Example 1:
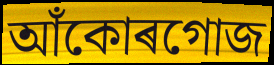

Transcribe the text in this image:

আঁকোৰগোজ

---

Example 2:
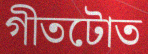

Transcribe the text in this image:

গীতটোত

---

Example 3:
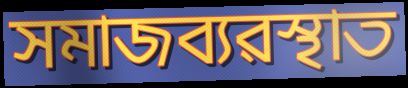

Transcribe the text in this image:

সমাজব্যৱস্থাত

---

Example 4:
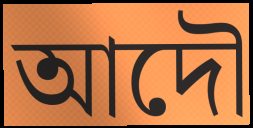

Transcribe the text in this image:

আদৌ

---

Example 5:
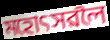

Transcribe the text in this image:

মহোৎসৱলৈ